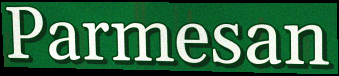
Parmesan